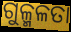
ଗୁଳ୍ମଳତା